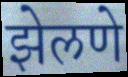
झेलणे